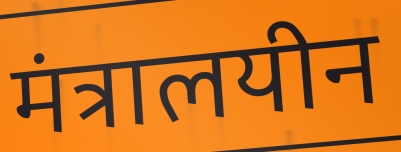
मंत्रालयीन